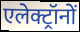
एलेक्ट्रॉनों